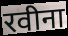
रवीना